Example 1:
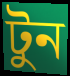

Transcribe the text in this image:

টুন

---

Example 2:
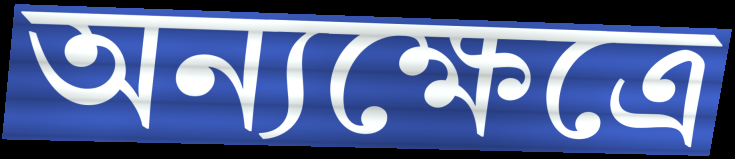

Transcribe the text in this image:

অন্যক্ষেত্রে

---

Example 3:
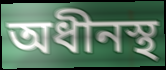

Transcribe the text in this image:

অধীনস্থ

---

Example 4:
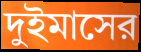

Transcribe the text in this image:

দুইমাসের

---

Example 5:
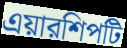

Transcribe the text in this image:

এয়ারশিপটি